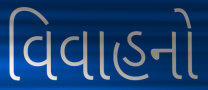
વિવાહનો